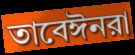
তাবেঈনরা